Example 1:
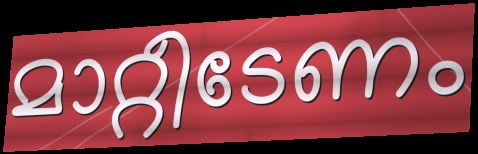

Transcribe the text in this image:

മാറ്റീടേണം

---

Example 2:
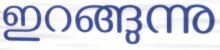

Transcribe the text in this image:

ഇറങ്ങുന്നു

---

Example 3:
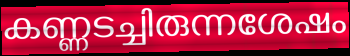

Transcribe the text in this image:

കണ്ണടച്ചിരുന്നശേഷം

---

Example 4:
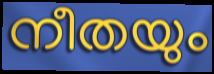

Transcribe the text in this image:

നീതയും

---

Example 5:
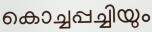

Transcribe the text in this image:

കൊച്ചപ്പച്ചിയും